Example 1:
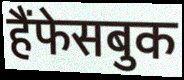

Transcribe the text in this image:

हैंफेसबुक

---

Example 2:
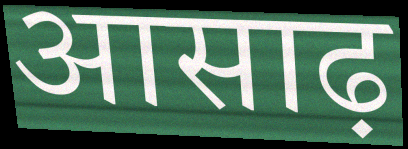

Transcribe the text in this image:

आसाढ़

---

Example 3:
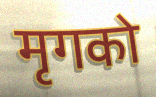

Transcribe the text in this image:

मृगको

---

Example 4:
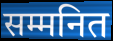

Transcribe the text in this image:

सम्मनित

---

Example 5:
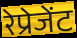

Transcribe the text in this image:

रेप्रेजेंट